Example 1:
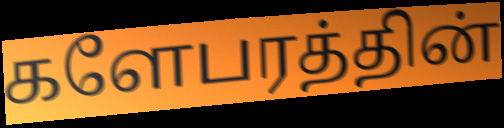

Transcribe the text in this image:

களேபரத்தின்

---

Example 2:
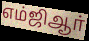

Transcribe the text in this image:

எம்ஜிஆர்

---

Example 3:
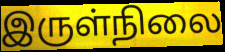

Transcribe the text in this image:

இருள்நிலை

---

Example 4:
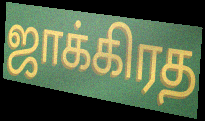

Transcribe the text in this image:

ஜாக்கிரத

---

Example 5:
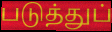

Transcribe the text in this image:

படுத்துப்